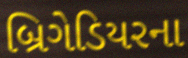
બ્રિગેડિયરના